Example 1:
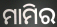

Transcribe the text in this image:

ମାମିର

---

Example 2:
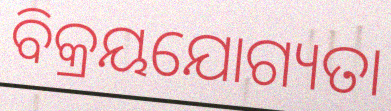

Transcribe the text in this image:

ବିକ୍ରୟଯୋଗ୍ୟତା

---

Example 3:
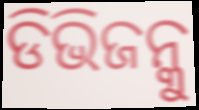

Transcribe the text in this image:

ଡିଭିଜନ୍କୁ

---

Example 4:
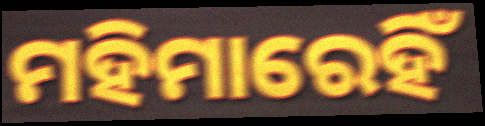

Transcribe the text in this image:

ମହିମାରେହିଁ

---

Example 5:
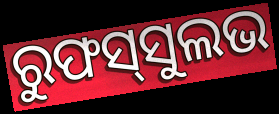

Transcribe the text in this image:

ରୁଫସ୍‌ସୁଲଭ